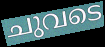
ചുവടെ